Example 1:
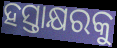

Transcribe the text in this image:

ହସ୍ତାକ୍ଷରକୁ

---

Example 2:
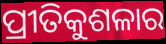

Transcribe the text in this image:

ପ୍ରୀତିକୁଶଳାର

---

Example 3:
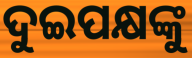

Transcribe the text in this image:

ଦୁଇପକ୍ଷଙ୍କୁ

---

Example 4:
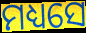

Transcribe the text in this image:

ମଧ୍ୟସେ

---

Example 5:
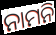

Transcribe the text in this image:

ନାମନି